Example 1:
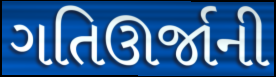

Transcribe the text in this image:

ગતિઊર્જાની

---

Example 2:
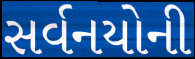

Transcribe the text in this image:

સર્વનયોની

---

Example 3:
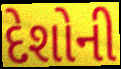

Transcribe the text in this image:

દેશોની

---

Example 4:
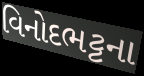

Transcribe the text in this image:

વિનોદભટ્ટના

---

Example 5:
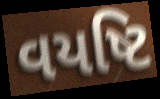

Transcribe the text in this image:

વયષ્ટિ